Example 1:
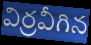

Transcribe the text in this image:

విర్రవీగిన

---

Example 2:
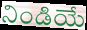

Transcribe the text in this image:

నిండియే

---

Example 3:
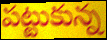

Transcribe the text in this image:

పట్టుకున్న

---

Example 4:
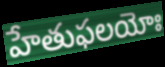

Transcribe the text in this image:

హేతుఫలయోః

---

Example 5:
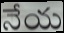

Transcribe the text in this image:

నేయ